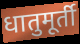
धातुमूर्ती